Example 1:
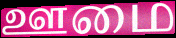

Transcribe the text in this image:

ஊமை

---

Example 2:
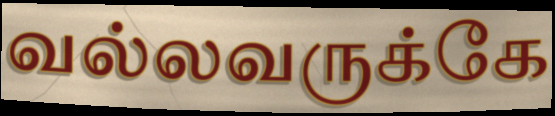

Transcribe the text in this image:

வல்லவருக்கே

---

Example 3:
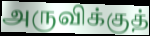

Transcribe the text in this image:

அருவிக்குத்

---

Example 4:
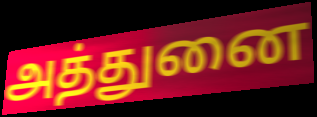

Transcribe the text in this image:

அத்துனை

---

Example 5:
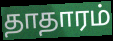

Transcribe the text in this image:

தாதாரம்